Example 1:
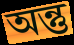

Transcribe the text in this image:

অন্তু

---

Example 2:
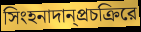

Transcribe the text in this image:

সিংহনাদান্প্রচক্রিরে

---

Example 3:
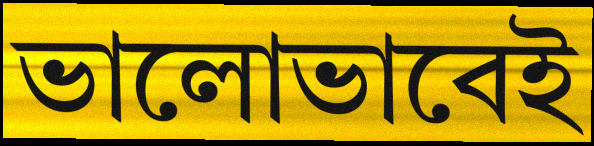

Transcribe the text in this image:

ভালোভাবেই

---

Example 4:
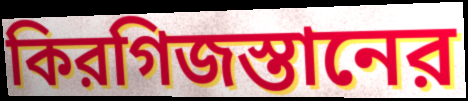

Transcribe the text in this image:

কিরগিজস্তানের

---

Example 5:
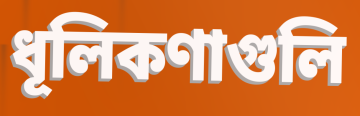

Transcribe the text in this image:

ধূলিকণাগুলি